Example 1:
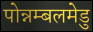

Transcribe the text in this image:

पोन्नम्बलमेडु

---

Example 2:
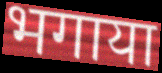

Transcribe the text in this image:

भगाया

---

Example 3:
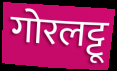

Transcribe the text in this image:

गोरलट्टू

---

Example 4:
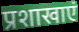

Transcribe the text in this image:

प्रशाखाएं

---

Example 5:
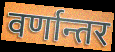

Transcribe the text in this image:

वर्णान्तर